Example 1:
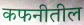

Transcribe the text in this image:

कफनीतील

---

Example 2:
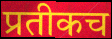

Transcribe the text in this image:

प्रतीकच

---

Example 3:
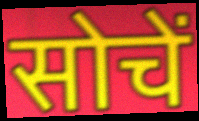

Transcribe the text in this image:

सोचें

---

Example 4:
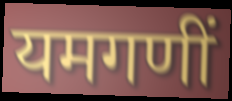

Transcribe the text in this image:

यमगणीं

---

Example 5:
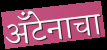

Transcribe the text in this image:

अँटेनाचा